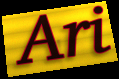
Ari